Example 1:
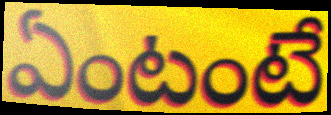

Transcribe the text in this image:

ఏంటంటే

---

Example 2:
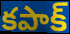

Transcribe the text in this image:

కపాక్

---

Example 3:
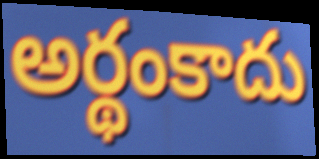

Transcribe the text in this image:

అర్థంకాదు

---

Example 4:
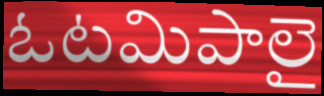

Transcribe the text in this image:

ఓటమిపాలై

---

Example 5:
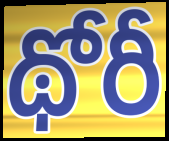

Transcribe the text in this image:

థోరీ